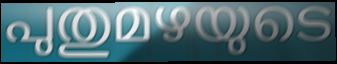
പുതുമഴയുടെ